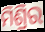
ମିଶ୍ରିର